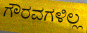
ಗೌರವಗಳಿಲ್ಲ